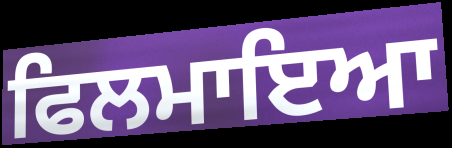
ਫਿਲਮਾਇਆ